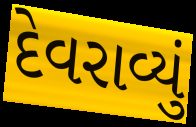
દેવરાવ્યું